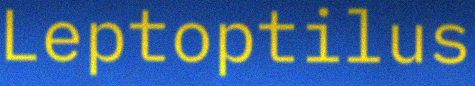
Leptoptilus